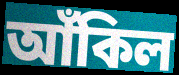
আঁকিল